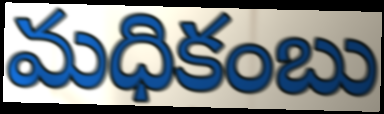
మధికంబు